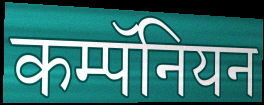
कम्पॅनियन